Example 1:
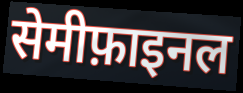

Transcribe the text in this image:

सेमीफ़ाइनल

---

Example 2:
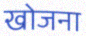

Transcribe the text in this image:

खोजना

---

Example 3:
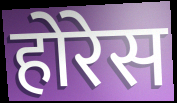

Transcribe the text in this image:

होरेस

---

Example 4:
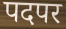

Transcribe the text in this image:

पदपर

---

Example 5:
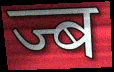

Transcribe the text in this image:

ज्ब